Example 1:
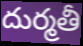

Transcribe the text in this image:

దుర్మతీ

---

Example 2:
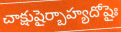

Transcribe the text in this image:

చాక్షుషైర్బాహ్యదోషైః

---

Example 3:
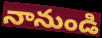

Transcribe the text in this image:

నానుండి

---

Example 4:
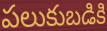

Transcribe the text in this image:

పలుకుబడికి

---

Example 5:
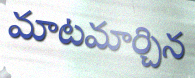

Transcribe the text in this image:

మాటమార్చిన